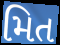
મિત